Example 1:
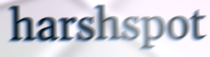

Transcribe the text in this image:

harshspot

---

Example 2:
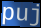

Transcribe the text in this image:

puj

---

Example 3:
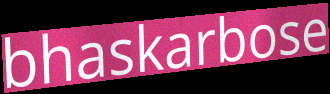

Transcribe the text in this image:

bhaskarbose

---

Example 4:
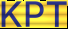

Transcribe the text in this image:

KPT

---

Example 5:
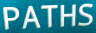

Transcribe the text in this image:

PATHS